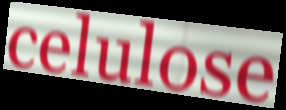
celulose